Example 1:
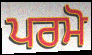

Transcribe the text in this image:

ਪਰਮੋ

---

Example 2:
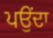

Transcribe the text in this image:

ਪਉਂਦਾ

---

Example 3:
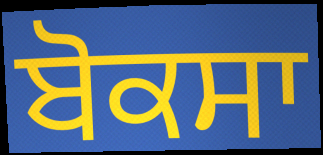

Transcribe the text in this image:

ਬੋਕਸਾ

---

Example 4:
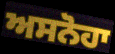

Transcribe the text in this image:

ਅਸਨੋਹਾ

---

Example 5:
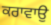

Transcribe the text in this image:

ਕਰਾਵਾਉ